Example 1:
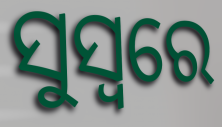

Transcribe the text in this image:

ସୁସ୍ୱରେ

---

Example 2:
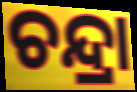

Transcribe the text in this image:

ଚନ୍ଦ୍ରା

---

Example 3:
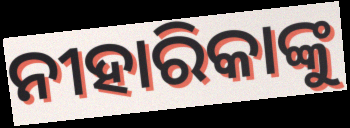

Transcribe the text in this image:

ନୀହାରିକାଙ୍କୁ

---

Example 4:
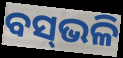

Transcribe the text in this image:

ବସ୍‌ଭଳି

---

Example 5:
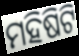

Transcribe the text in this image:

ମହିଷିଟି